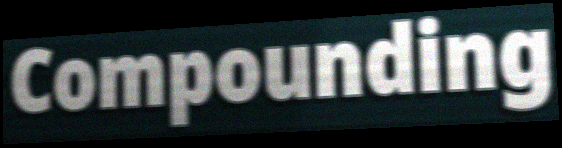
Compounding